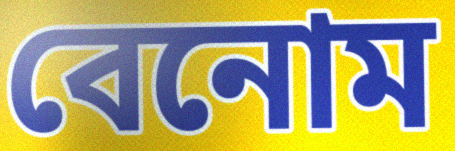
বেনোম